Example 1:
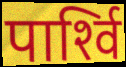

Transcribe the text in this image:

पार्श्वि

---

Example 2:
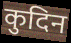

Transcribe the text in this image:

कुदिन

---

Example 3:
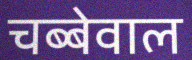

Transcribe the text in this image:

चब्बेवाल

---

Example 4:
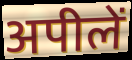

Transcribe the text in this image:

अपीलें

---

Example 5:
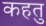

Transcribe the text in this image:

कहतु